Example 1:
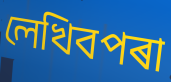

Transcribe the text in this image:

লেখিবপৰা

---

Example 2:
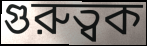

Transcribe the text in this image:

গুৰুত্বক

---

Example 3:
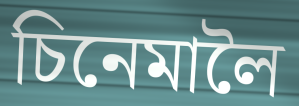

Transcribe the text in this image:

চিনেমালৈ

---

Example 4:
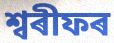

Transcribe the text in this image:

শ্বৰীফৰ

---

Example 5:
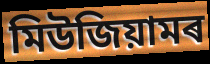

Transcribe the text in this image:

মিউজিয়ামৰ